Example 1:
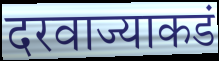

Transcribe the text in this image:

दरवाज्याकडं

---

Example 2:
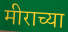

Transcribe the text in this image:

मीराच्या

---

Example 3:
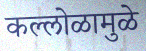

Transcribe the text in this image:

कल्लोळामुळे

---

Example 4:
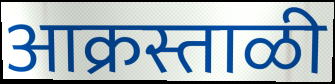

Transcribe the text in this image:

आक्रस्ताळी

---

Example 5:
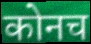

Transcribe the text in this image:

कोनच